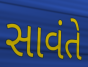
સાવંતે